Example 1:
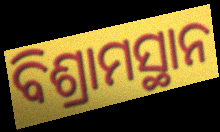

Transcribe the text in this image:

ବିଶ୍ରାମସ୍ଥାନ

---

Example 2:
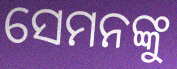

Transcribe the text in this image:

ସେମନଙ୍କୁ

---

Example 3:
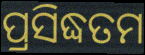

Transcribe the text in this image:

ପ୍ରସିଦ୍ଧତମ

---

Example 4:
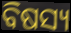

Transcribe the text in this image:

ବିଷସ୍ୟ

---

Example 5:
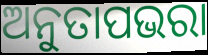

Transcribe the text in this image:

ଅନୁତାପଭରା